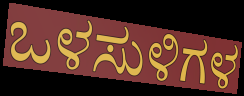
ಒಳಸುಳಿಗಳ